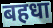
बहधा